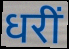
धरीं